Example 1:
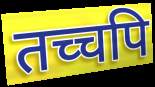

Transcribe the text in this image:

तच्चपि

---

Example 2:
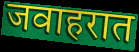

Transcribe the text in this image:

जवाहरात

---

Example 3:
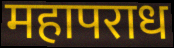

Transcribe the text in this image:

महापराध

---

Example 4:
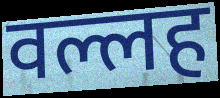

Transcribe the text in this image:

वल्लह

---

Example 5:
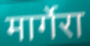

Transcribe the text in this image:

मार्गेरा